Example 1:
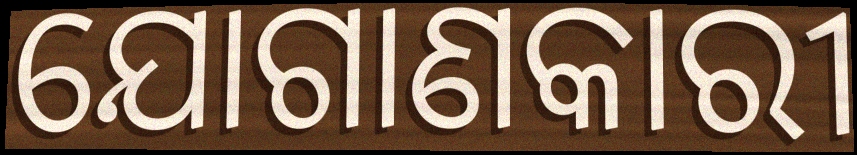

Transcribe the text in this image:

ଯୋଗାଣକାରୀ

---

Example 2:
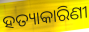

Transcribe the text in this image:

ହତ୍ୟାକାରିଣୀ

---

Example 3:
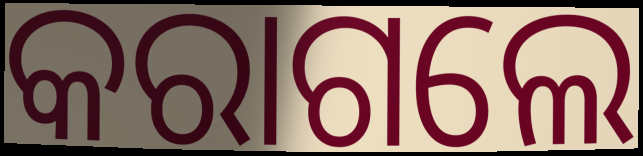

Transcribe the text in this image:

କରାଗଲେ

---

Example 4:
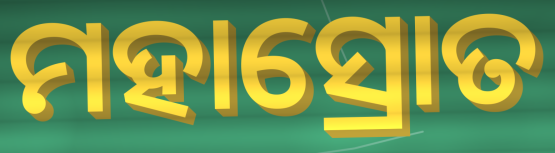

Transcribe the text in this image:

ମହାସ୍ରୋତ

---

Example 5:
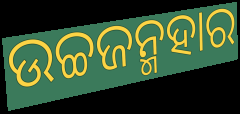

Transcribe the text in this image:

ଉଚ୍ଚଜନ୍ମହାର